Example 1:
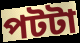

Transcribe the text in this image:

পটটা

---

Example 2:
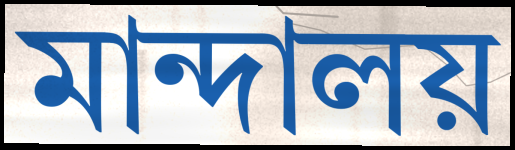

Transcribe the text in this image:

মান্দালয়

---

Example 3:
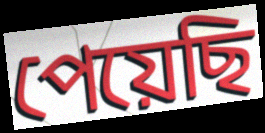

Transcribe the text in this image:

পেয়েছি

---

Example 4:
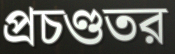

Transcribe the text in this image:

প্রচণ্ডতর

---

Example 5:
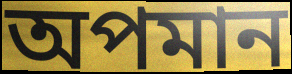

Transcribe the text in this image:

অপমান